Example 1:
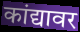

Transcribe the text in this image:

कांद्यावर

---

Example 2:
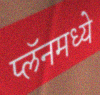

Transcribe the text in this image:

प्लॅनमध्ये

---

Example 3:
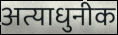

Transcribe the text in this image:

अत्याधुनीक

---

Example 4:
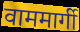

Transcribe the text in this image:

वाममार्गी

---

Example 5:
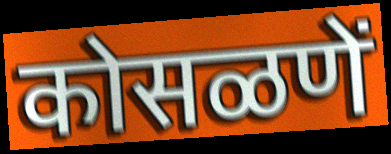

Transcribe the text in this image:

कोसळणें